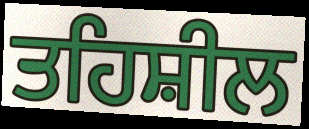
ਤਹਿਸ਼ੀਲ